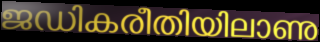
ജഡികരീതിയിലാണു